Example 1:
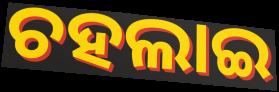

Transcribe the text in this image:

ଚହଲାଇ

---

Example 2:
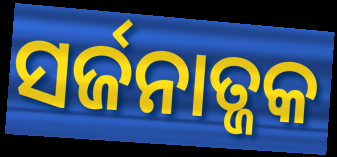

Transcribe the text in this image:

ସର୍ଜନାତ୍ଜକ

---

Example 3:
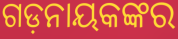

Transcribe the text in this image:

ଗଡ଼ନାୟକଙ୍କର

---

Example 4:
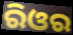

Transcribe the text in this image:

ରିଓର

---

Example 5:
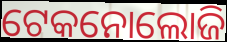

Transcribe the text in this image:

ଟେକନୋଲୋଜି